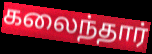
கலைந்தார்